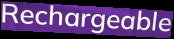
Rechargeable